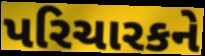
પરિચારકને